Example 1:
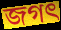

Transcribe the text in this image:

জগৎ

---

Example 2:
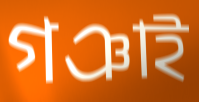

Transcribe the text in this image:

গঞাই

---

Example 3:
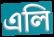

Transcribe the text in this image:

এলি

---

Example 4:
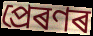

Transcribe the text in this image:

প্ৰেৰণৰ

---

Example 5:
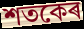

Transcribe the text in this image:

শতকেৰ